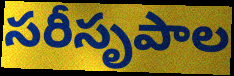
సరీసృపాల